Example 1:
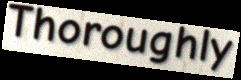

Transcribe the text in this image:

Thoroughly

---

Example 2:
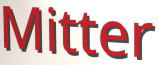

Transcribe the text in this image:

Mitter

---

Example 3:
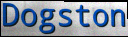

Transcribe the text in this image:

Dogston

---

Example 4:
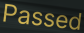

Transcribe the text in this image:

Passed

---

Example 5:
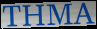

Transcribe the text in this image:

THMA